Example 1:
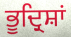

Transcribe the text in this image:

ਭੂਦ੍ਰਿਸ਼ਾਂ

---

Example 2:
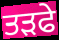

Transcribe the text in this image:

ਤੜਫੇ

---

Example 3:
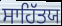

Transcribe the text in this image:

ਸਾਹਿੱਤਯ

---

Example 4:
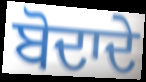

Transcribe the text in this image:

ਬੋਦਾਦੇ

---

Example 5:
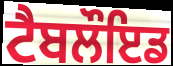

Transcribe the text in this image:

ਟੈਬਲੌਇਡ